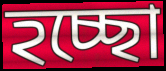
হচ্ছো